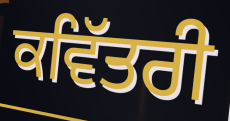
ਕਵਿੱਤਰੀ